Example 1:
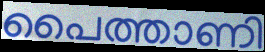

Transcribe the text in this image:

പൈത്താണി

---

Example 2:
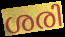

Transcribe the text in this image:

ശരി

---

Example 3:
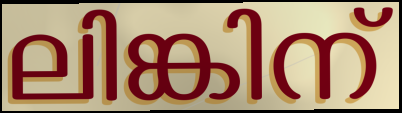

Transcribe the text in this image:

ലിങ്കിന്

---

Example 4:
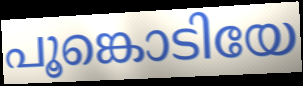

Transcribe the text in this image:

പൂങ്കൊടിയേ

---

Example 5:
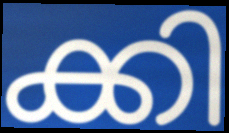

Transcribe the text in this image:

ക്കി